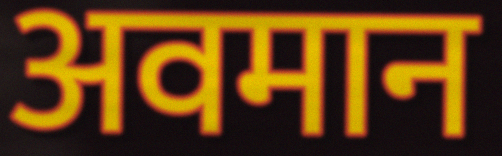
अवमान